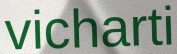
vicharti